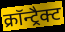
क्रॉन्ट्रैक्ट